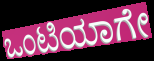
ಒಂಟಿಯಾಗೇ